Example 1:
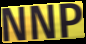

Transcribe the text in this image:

NNP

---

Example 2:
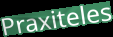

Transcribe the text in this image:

Praxiteles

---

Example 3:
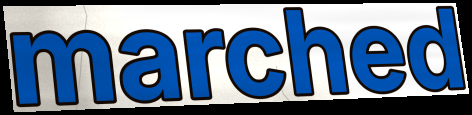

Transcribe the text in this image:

marched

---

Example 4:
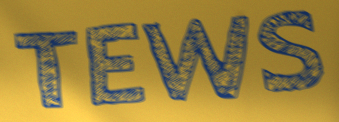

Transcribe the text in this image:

TEWS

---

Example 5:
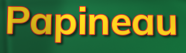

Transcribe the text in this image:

Papineau